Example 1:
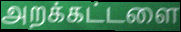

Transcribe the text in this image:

அறக்கட்டளை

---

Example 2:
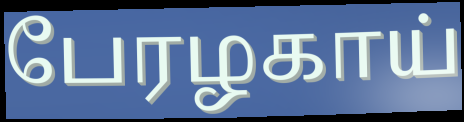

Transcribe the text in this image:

பேரழகாய்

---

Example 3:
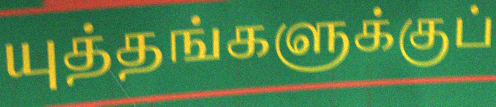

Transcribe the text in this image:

யுத்தங்களுக்குப்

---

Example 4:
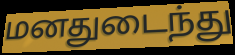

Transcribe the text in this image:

மனதுடைந்து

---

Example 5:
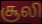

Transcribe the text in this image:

சூலி